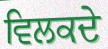
ਵਿਲਕਦੇ